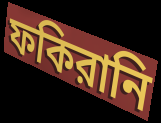
ফকিরানি